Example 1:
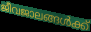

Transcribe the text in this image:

ജീവജാലങ്ങൾക്ക്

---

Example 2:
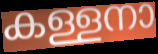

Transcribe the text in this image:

കള്ളനാ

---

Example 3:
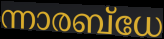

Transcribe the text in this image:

ന്നാരബ്ധേ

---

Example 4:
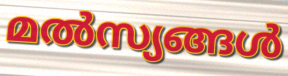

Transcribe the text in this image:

മൽസ്യങ്ങൾ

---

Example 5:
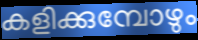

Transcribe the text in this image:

കളിക്കുമ്പോഴും